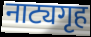
नाट्यगृह